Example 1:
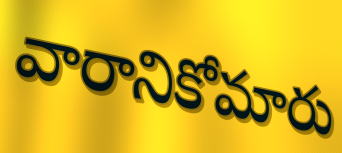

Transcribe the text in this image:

వారానికోమారు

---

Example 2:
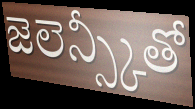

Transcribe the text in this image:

జెలెన్స్కీతో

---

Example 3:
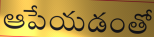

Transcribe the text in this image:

ఆపేయడంతో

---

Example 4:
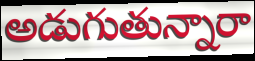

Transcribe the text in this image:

అడుగుతున్నారా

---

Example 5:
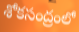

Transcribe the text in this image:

శోకసంద్రంలో